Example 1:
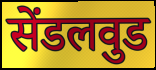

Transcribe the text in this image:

सेंडलवुड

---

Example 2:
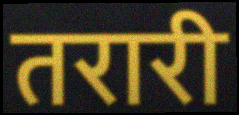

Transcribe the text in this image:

तरारी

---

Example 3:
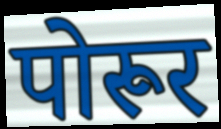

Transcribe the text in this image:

पोरूर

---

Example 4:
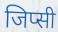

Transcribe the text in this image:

जिप्सी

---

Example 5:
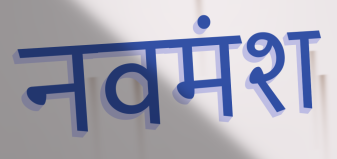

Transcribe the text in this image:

नवमंश